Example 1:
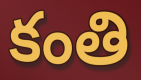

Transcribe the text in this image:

కంతి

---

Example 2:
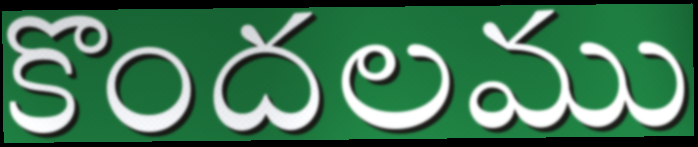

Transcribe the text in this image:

కొందలము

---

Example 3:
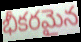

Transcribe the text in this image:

భీకరమైన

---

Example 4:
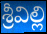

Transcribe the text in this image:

శ్రీవిల్లి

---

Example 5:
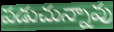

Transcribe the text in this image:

పడుచున్నావు